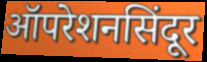
ऑपरेशनसिंदूर